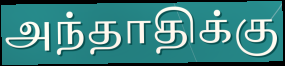
அந்தாதிக்கு